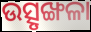
ଉତ୍ସୃଙ୍ଖଳା